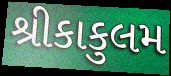
શ્રીકાકુલમ